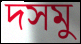
দসমু